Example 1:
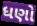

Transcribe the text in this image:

ધણો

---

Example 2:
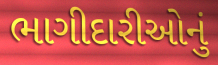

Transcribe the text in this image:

ભાગીદારીઓનું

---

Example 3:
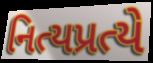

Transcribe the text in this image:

નિત્યપ્રત્યે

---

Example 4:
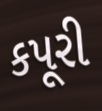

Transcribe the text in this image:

કપૂરી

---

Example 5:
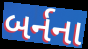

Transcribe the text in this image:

બર્નના